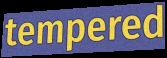
tempered